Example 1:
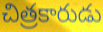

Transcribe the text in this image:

చిత్రకారుడు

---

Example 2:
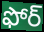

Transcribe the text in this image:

ఫోర్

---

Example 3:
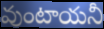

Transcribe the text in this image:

వుంటాయనీ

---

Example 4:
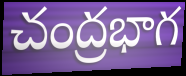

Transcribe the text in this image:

చంద్రభాగ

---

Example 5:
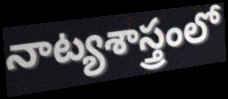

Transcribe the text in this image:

నాట్యశాస్త్రంలో